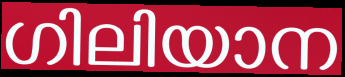
ഗിലിയാന